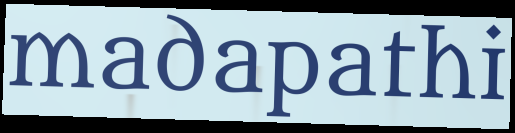
madapathi